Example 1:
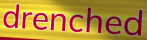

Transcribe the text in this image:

drenched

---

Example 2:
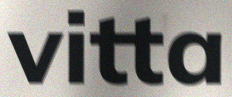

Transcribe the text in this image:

vitta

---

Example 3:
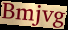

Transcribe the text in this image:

Bmjvg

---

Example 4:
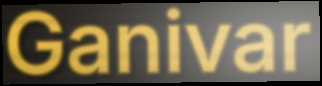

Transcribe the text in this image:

Ganivar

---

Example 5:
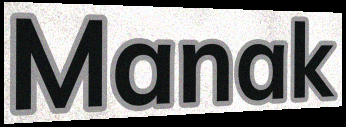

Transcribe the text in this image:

Manak